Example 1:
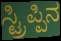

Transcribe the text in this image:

ಸ್ಟ್ರಿಪ್ಪಿನ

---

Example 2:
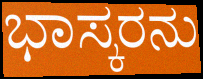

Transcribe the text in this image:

ಭಾಸ್ಕರನು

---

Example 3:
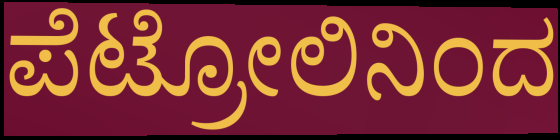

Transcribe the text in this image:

ಪೆಟ್ರೋಲಿನಿಂದ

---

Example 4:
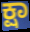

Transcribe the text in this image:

ಕ್ಷಾ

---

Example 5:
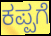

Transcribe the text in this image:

ಕಪ್ಪಗೆ